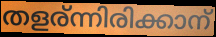
തളര്ന്നിരിക്കാന്